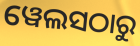
ୱେଲସଠାରୁ